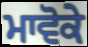
ਮਾਵੋਕੇ